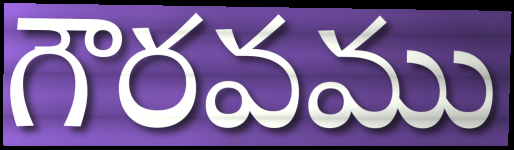
గౌరవము